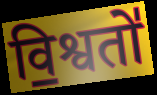
वि॒श्वतो॑